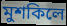
মুশকিলে